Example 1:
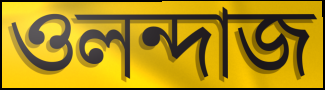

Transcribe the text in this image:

ওলন্দাজ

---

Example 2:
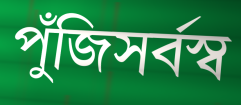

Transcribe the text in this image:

পুঁজিসর্বস্ব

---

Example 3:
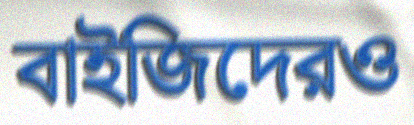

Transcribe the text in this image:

বাইজিদেরও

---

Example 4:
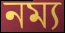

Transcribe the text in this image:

নম্য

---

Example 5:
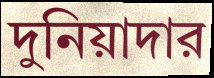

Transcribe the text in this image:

দুনিয়াদার